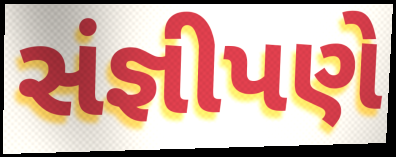
સંજ્ઞીપણે